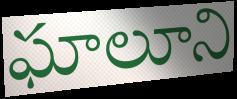
ఘాలూని